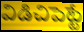
విడిచిపెట్టే